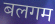
बलगम